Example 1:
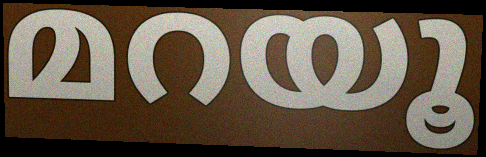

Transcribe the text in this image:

മറയൂ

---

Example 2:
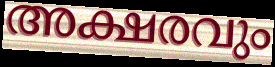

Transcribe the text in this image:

അക്ഷരവും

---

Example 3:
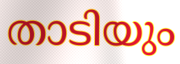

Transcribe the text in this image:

താടിയും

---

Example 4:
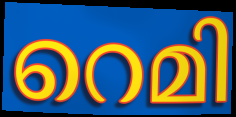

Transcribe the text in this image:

റെമി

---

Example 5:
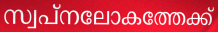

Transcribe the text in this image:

സ്വപ്നലോകത്തേക്ക്